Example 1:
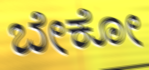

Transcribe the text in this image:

ಬೇಕೋ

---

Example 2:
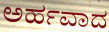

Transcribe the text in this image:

ಅರ್ಹವಾದ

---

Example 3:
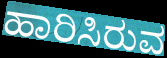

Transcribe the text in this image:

ಹಾರಿಸಿರುವ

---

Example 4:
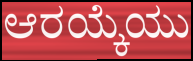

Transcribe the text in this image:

ಆರಯ್ಕೆಯು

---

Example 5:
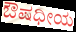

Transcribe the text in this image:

ಔಷಧೀಯ